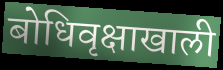
बोधिवृक्षाखाली